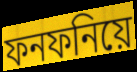
ফনফনিয়ে